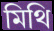
মিথি